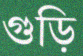
গুড়ি